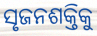
ସୃଜନଶକ୍ତିକୁ